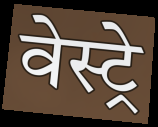
वेस्ट्रे